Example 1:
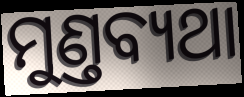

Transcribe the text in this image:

ମୁଣ୍ତବ୍ୟଥା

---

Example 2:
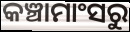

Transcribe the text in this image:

କଞ୍ଚାମାଂସରୁ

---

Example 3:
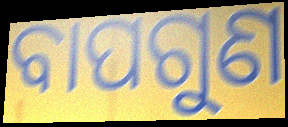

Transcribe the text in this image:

ବାପଗୁଣ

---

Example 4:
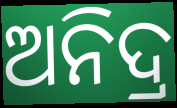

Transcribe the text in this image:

ଅନିଦ୍ର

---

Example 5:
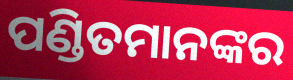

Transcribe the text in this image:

ପଣ୍ଡିତମାନଙ୍କର